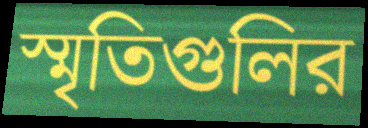
স্মৃতিগুলির